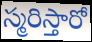
స్మరిస్తారో